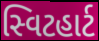
સ્વિટહાર્ટ